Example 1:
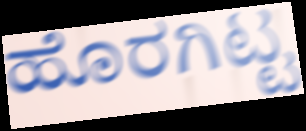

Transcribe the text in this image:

ಹೊರಗಿಟ್ಟ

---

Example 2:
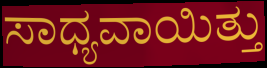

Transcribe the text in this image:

ಸಾಧ್ಯವಾಯಿತ್ತು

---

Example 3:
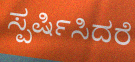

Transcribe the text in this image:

ಸ್ಪರ್ಷಿಸಿದರೆ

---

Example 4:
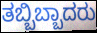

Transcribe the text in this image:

ತಬ್ಬಿಬ್ಬಾದರು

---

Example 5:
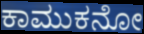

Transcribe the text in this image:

ಕಾಮುಕನೋ